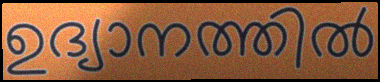
ഉദ്യാനത്തിൽ